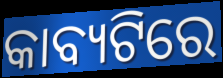
କାବ୍ୟଟିରେ